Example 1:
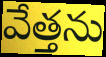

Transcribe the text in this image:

వేత్తను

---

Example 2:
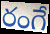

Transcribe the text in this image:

రంగే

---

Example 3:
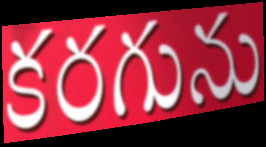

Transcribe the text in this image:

కరగును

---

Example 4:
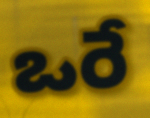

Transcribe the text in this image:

ఒరే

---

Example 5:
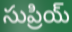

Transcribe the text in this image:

సుప్రియ్